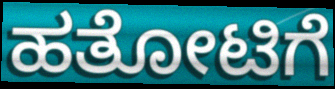
ಹತೋಟಿಗೆ